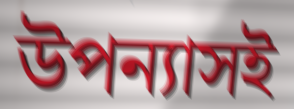
উপন্যাসই